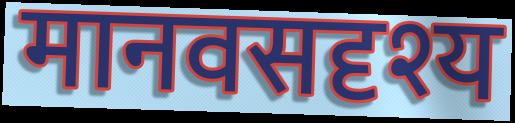
मानवसदृश्य